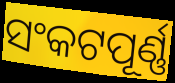
ସଂକଟପୂର୍ଣ୍ଣ